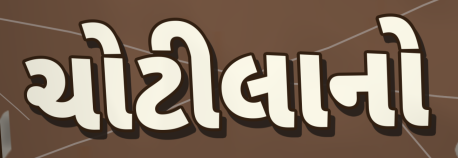
ચોટીલાનો